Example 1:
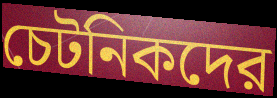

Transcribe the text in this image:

চেটনিকদের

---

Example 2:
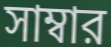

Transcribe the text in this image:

সাম্বার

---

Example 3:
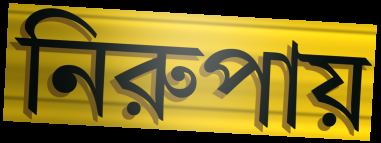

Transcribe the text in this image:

নিরুপায়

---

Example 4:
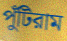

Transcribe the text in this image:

পুঁটিরাম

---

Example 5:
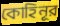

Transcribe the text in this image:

কোহিনূর